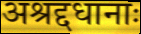
अश्रद्दधानाः